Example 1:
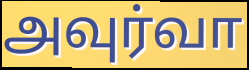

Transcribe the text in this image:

அவுர்வா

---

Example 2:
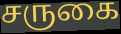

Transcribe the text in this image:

சருகை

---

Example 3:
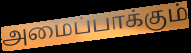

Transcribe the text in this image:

அமைப்பாக்கும்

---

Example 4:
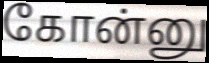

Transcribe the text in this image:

கோன்னு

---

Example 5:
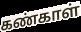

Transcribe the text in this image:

கண்காள்